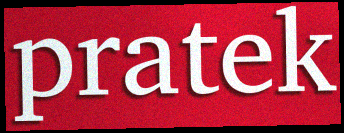
pratek